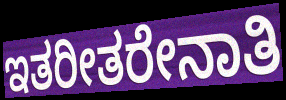
ಇತರೀತರೇನಾತಿ